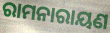
ରାମନାରାୟଣ